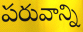
పరువాన్ని